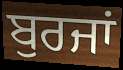
ਬੁਰਜਾਂ